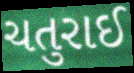
ચતુરાઈ